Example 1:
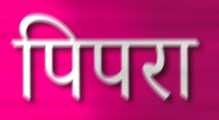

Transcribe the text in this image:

पिपरा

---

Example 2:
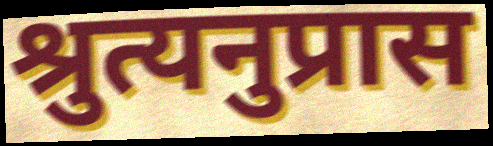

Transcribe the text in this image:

श्रुत्यनुप्रास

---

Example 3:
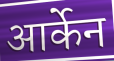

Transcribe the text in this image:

आर्केन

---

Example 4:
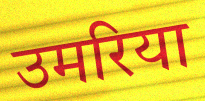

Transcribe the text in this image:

उमरिया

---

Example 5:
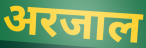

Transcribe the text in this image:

अरजाल